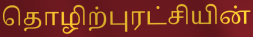
தொழிற்புரட்சியின்